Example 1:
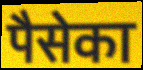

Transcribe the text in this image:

पैसेका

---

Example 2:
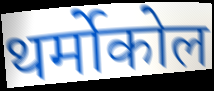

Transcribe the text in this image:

थर्मोकोल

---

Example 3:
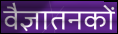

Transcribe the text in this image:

वैज्ञातनकों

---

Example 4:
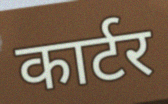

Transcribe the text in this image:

कार्टर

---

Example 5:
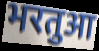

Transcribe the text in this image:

भरतुआ